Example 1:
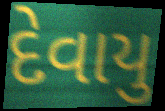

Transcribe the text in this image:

દેવાયુ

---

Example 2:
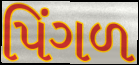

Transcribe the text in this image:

પિંગળ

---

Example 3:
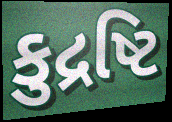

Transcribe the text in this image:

કુદ્રષ્ટિ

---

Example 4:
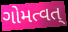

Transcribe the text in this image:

ગોમત્વત્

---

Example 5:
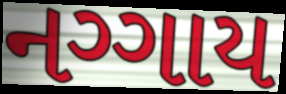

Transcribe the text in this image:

નગ્ગાય